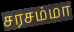
சரசம்மா